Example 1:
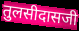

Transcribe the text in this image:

तुलसीदासजी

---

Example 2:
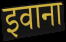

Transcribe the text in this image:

इवाना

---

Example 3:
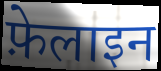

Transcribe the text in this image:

फ़ेलाइन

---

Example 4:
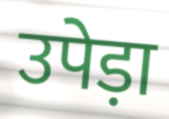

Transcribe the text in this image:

उपेड़ा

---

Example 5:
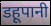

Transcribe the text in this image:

डहूपानी